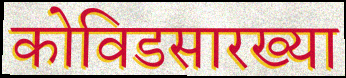
कोविडसारख्या